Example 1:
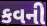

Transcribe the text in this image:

કવની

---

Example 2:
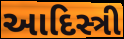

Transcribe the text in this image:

આદિસ્ત્રી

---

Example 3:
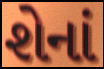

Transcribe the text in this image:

શેનાં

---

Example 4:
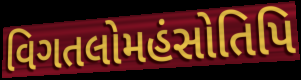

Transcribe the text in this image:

વિગતલોમહંસોતિપિ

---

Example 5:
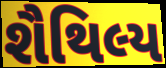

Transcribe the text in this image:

શૈથિલ્ય